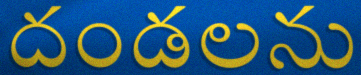
దండలను